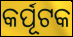
କର୍ପୂଟକ